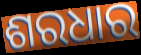
ଶରଧାର